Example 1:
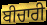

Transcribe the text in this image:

ਬੀਚਾਰੀ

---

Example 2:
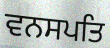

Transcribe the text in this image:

ਵਨਸਪਤਿ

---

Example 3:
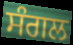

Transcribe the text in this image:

ਸੰਗਲ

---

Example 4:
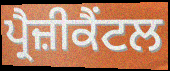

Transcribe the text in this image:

ਪ੍ਰੈਜ਼ੀਕੈਂਟਲ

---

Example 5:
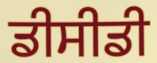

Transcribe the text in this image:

ਡੀਸੀਡੀ